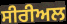
ਸੀਰੀਅਲ